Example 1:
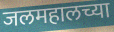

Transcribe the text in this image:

जलमहालच्या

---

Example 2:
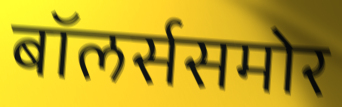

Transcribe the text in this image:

बॉलर्ससमोर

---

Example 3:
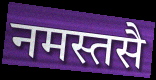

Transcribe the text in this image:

नमस्तसै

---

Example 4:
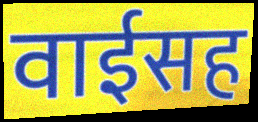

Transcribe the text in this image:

वाईसह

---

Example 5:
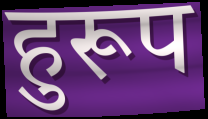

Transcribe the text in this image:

हुरूप